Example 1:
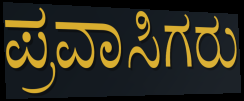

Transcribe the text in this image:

ಪ್ರವಾಸಿಗರು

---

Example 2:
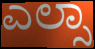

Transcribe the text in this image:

ಎಲ್ಸಾ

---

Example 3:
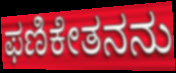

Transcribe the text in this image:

ಫಣಿಕೇತನನು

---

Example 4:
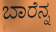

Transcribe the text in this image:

ಬಾರೆನ್ನ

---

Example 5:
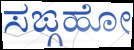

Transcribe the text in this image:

ಸಙ್ಗಹೋ